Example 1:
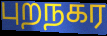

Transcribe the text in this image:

புறநகர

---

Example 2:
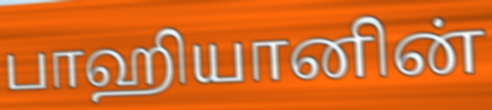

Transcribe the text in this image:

பாஹியானின்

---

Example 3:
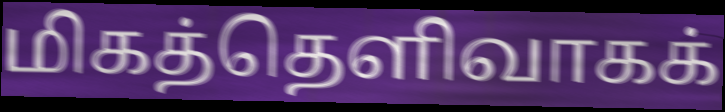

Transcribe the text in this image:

மிகத்தெளிவாகக்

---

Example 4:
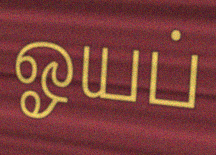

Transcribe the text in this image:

ஓயப்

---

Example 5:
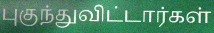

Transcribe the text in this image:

புகுந்துவிட்டார்கள்